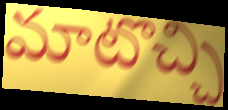
మాటొచ్చి